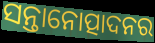
ସନ୍ତାନୋତ୍ପାଦନର